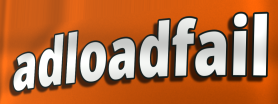
adloadfail